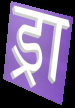
ड्रा